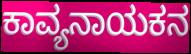
ಕಾವ್ಯನಾಯಕನ